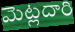
మెట్లదారి